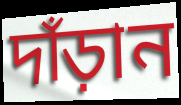
দাঁড়ান